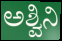
ಅಶ್ವಿನಿ